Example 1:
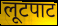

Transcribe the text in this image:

लूटपाट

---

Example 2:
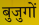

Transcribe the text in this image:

बुजुगों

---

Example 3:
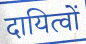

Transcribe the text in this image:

दायित्वों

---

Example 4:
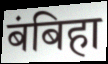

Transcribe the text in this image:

बंबिहा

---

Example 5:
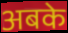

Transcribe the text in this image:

अबके